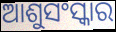
ଆଶୁସଂସ୍କାର